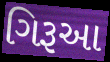
ગિરૂઆ